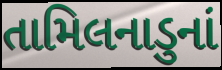
તામિલનાડુનાં